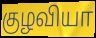
குழவியா